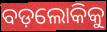
ବଡ଼ଲୋକିକୁ